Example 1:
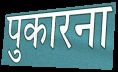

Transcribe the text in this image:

पुकारना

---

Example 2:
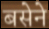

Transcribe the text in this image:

बसेने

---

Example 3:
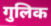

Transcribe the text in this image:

गुलिक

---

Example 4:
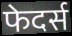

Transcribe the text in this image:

फेदर्स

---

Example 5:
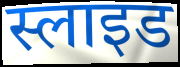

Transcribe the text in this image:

स्लाइड